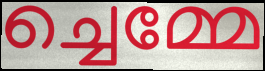
ച്ചെമ്മേ